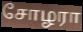
சோழரா